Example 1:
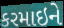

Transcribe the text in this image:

કરમાઇને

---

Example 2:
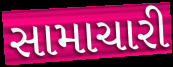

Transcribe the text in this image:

સામાચારી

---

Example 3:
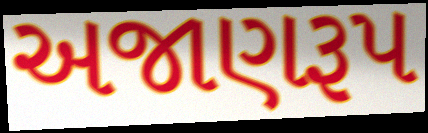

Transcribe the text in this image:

અજાણરૂપ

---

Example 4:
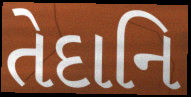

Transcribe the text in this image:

તેદાનિ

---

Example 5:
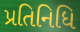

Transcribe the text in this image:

પ્રતિનિધિ